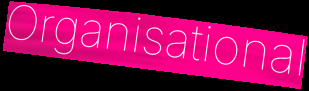
Organisational